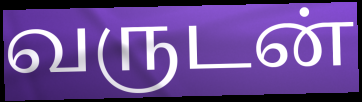
வருடன்